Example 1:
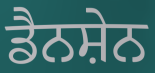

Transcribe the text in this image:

ਡੈਨਸ਼ੇਨ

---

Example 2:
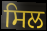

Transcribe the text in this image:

ਸਿਲ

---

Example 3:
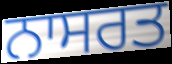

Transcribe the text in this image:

ਨਾਸਰਤ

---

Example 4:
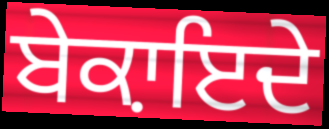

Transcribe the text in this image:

ਬੇਕ਼ਾਇਦੇ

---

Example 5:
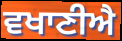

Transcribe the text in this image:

ਵਖਾਣੀਐ